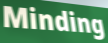
Minding